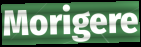
Morigere